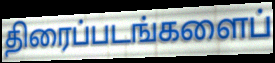
திரைப்படங்களைப்